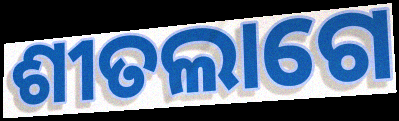
ଶୀତଲାଗେ